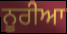
ਨੂਰੀਆ